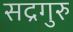
सद्रगुरु